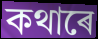
কথাৰে